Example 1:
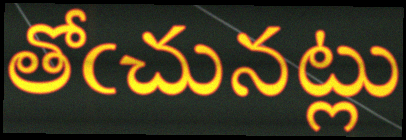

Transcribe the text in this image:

తోఁచునట్లు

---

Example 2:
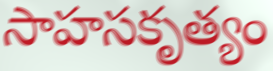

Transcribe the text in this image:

సాహసకృత్యం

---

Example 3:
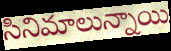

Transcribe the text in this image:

సినిమాలున్నాయి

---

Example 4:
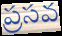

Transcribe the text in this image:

ప్రసవ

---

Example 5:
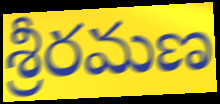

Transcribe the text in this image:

శ్రీరమణ